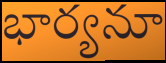
భార్యనూ